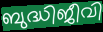
ബുദ്ധിജീവി